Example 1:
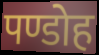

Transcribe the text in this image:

पण्डोह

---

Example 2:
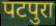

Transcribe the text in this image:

पटपुरा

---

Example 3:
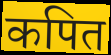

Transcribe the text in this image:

कपित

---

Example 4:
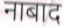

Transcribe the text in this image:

नाबाद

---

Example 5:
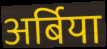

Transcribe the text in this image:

अर्बिया